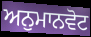
ਅਨੁਮਾਨਵੋਟ